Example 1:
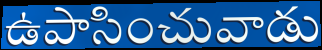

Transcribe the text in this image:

ఉపాసించువాడు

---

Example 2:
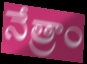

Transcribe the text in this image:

నేత్రాం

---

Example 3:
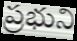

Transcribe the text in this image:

ప్రభుని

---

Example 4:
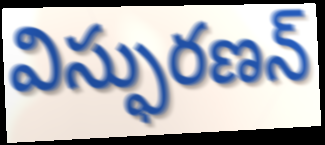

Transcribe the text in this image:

విస్ఫురణన్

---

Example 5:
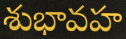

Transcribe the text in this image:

శుభావహ